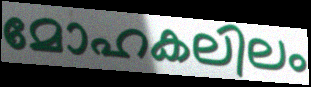
മോഹകലിലം